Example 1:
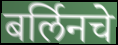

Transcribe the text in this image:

बर्लिनचे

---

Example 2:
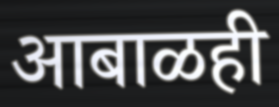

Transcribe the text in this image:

आबाळही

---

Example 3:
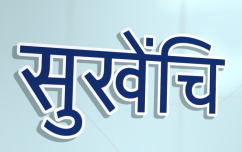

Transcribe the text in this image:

सुखेंचि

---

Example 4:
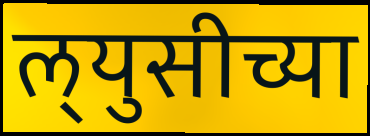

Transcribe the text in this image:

ल्युसीच्या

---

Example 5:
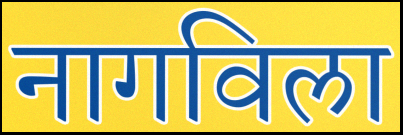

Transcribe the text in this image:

नागविला